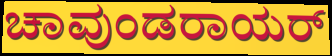
ಚಾವುಂಡರಾಯರ್